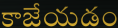
కాజేయడం